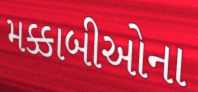
મક્કાબીઓના